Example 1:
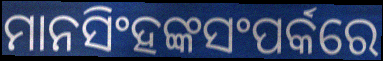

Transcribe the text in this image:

ମାନସିଂହଙ୍କସଂପର୍କରେ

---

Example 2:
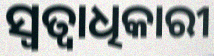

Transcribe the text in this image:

ସ୍ବତ୍ବାଧିକାରୀ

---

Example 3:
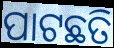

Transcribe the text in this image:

ପାଟଛତି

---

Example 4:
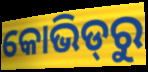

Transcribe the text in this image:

କୋଭିଡ୍‌ରୁ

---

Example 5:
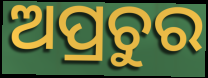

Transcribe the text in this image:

ଅପ୍ରଚୁର